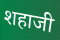
शहाजी